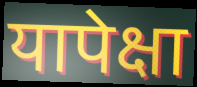
यापेक्षा